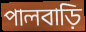
পালবাড়ি